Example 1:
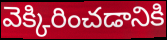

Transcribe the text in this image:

వెక్కిరించడానికి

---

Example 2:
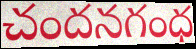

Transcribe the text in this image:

చందనగంధ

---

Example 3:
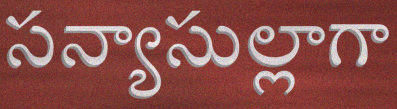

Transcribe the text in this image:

సన్యాసుల్లాగా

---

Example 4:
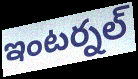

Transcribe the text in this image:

ఇంటర్నల్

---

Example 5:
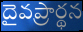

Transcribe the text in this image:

దైవప్రార్థన